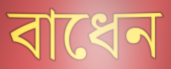
বাধেন